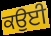
ਕਉਈ